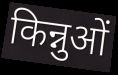
किन्नुओं